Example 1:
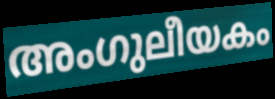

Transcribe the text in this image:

അംഗുലീയകം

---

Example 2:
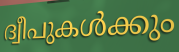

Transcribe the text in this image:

ദ്വീപുകൾക്കും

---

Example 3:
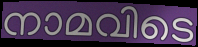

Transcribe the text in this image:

നാമവിടെ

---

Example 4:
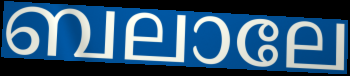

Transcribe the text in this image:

ബലാലേ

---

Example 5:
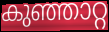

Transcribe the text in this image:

കുഞ്ഞാറ്റ